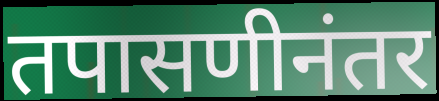
तपासणीनंतर